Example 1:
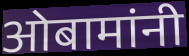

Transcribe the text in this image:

ओबामांनी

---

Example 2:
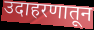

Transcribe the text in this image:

उदाहरणातून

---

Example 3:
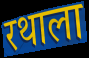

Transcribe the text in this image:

रथाला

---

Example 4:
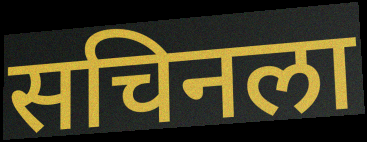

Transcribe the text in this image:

सचिनला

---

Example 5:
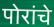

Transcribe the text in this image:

पोरांचे